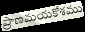
ప్రాణమయకోశము